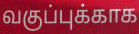
வகுப்புக்காக